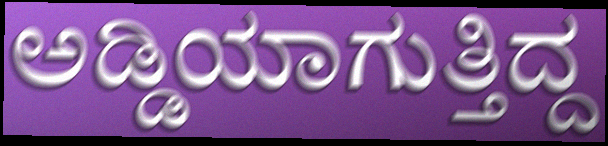
ಅಡ್ಡಿಯಾಗುತ್ತಿದ್ದ